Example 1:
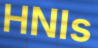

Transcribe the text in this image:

HNIs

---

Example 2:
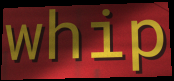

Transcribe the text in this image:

whip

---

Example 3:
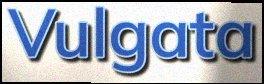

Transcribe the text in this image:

Vulgata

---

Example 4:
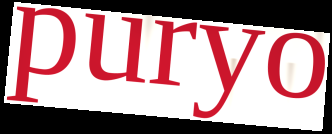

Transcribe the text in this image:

puryo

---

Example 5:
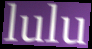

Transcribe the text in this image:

lulu